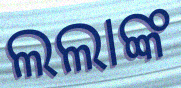
ଲଲାଙ୍କ